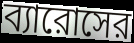
ব্যারোসের